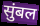
सुंबल